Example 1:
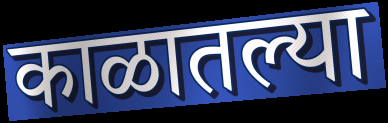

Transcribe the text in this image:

काळातल्या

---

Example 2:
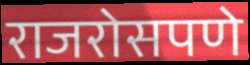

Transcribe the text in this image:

राजरोसपणे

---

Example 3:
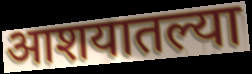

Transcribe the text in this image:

आशयातल्या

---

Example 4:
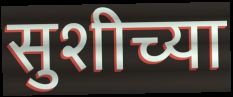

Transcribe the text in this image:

सुशीच्या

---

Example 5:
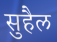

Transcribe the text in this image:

सुहैल